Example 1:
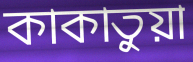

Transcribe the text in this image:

কাকাতুয়া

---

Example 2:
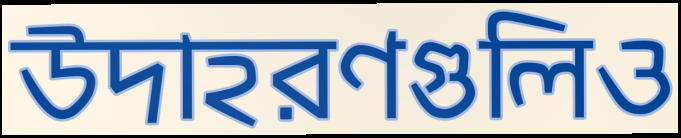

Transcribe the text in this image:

উদাহরণগুলিও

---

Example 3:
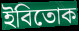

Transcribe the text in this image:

ইবিতোক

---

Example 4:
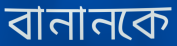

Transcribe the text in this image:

বানানকে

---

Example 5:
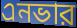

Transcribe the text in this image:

এনভার